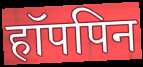
हॉपपिन